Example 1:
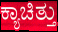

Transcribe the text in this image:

ಕ್ಯಾಚಿತ್ತು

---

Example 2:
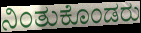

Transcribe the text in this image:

ನಿಂತುಕೊಂಡರು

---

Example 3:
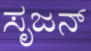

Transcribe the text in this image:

ಸೃಜನ್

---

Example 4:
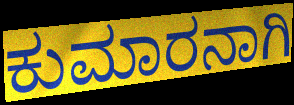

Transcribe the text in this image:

ಕುಮಾರನಾಗಿ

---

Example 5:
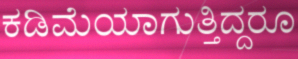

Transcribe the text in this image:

ಕಡಿಮೆಯಾಗುತ್ತಿದ್ದರೂ